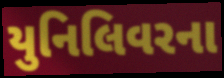
યુનિલિવરના